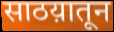
साठय़ातून